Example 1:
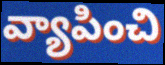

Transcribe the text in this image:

వ్యాపించి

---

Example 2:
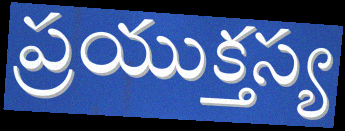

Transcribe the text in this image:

ప్రయుక్తస్య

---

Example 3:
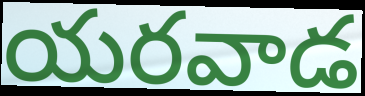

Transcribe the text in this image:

యరవాడ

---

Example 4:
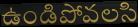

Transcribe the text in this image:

ఉండిపోవలసి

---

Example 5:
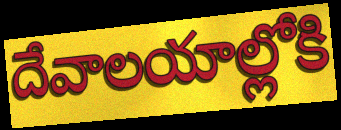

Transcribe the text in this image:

దేవాలయాల్లోకి